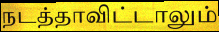
நடத்தாவிட்டாலும்